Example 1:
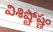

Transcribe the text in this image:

విశిష్టోష్ణం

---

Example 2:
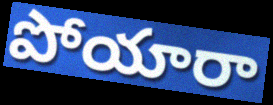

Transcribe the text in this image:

పోయారా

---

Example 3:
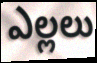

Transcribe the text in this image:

ఎల్లలు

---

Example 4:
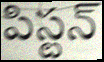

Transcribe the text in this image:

పిస్టన్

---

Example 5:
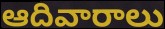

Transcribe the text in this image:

ఆదివారాలు